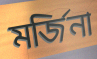
মর্জিনা